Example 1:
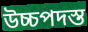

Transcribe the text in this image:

উচ্চপদস্ত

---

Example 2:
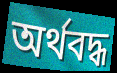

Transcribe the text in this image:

অর্থবদ্ধ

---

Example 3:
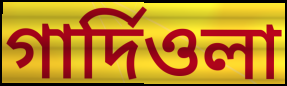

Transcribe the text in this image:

গার্দিওলা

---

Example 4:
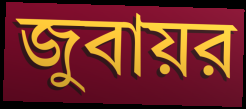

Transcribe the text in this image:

জুবায়র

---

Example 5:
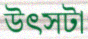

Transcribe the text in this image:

উৎসটা